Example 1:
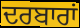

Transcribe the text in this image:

ਦਰਬਾਰਾਂ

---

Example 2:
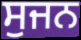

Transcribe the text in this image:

ਸੁਜਨ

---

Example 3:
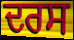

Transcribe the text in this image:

ਦਰਸ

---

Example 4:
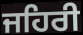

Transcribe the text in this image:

ਜਹਿਰੀ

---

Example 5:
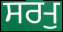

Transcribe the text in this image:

ਸਰ੍ਮੁ